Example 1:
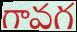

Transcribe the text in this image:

గావగ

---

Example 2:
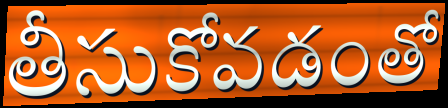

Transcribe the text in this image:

తీసుకోవడంతో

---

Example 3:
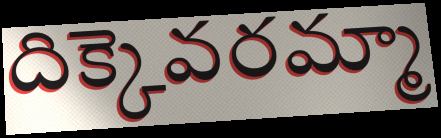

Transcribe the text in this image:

దిక్కెవరమ్మా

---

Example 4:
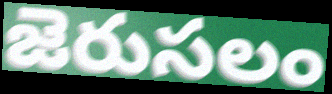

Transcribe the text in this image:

జెరుసలం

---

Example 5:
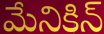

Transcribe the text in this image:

మేనికిన్